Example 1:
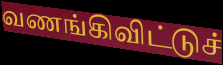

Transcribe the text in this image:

வணங்கிவிட்டுச்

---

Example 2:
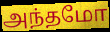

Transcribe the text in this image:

அந்தமோ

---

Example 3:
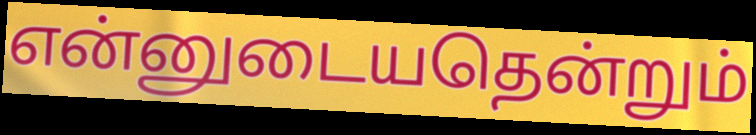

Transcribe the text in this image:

என்னுடையதென்றும்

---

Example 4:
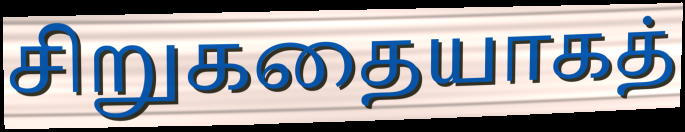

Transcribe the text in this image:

சிறுகதையாகத்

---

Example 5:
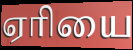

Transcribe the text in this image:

ஏரியை